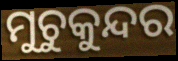
ମୁଚୁକୁନ୍ଦର